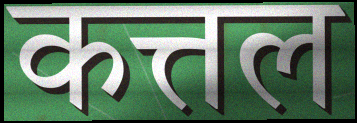
कत्तल